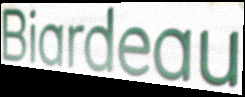
Biardeau